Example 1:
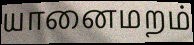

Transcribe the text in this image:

யானைமறம்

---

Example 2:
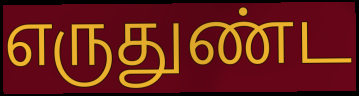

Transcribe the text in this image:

எருதுண்ட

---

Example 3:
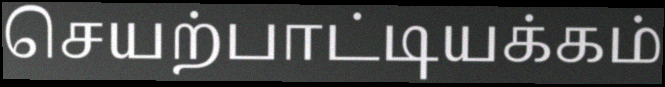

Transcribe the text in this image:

செயற்பாட்டியக்கம்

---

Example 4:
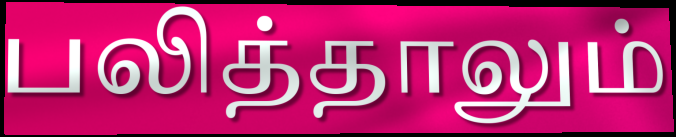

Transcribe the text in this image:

பலித்தாலும்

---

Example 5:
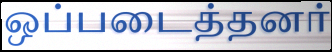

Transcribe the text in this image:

ஒப்படைத்தனர்